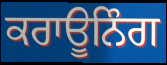
ਕਰਾਊਨਿੰਗ